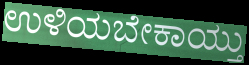
ಉಳಿಯಬೇಕಾಯ್ತು